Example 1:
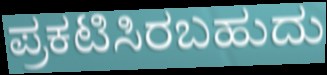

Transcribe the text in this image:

ಪ್ರಕಟಿಸಿರಬಹುದು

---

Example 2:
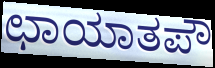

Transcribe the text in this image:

ಛಾಯಾತಪೌ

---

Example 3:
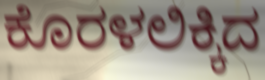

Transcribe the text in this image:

ಕೊರಳಲಿಕ್ಕಿದ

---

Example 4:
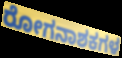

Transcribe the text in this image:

ರೋಗನಾಶಕಗಳ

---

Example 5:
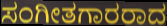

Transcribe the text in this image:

ಸಂಗೀತಗಾರರಾದ